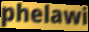
phelawi